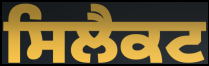
ਸਿਲੈਕਟ